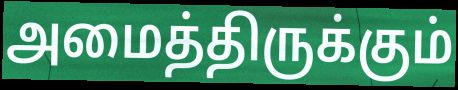
அமைத்திருக்கும்